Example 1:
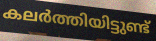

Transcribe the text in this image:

കലർത്തിയിട്ടുണ്ട്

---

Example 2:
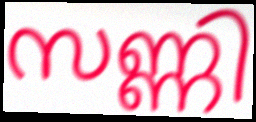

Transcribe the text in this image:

സണ്ണി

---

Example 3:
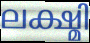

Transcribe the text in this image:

ലക്ഷ്മി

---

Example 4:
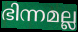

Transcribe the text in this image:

ഭിന്നമല്ല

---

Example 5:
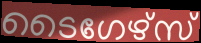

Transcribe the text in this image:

ടൈഗേഴ്സ്